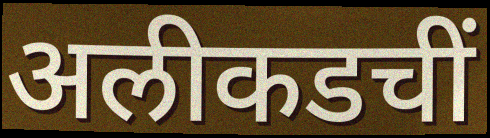
अलीकडचीं